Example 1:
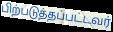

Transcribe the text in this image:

பிற்படுத்தப்பட்டவர்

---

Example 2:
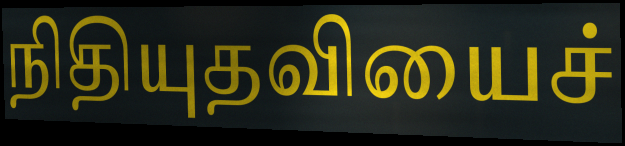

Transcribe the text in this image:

நிதியுதவியைச்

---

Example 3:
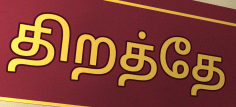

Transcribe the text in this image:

திறத்தே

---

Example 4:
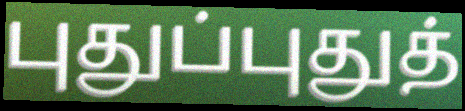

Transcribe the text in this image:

புதுப்புதுத்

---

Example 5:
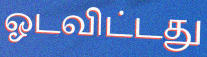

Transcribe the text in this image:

ஓடவிட்டது